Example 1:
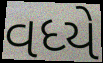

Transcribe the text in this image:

વધ્યે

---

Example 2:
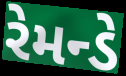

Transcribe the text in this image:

રેમન્ડે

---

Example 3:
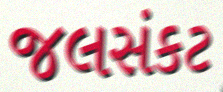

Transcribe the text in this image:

જલસંકટ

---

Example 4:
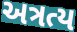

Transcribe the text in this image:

અત્રત્ય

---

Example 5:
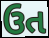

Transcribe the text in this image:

ઉત